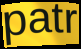
patr